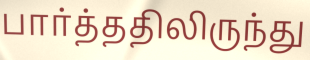
பார்த்ததிலிருந்து